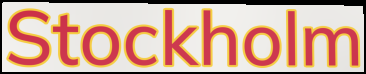
Stockholm